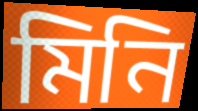
মিনি